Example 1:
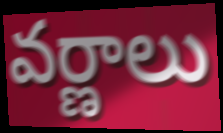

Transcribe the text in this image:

వర్ణాలు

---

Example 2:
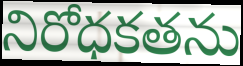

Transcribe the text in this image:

నిరోధకతను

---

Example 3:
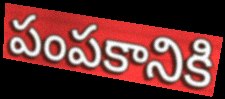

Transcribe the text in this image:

పంపకానికి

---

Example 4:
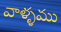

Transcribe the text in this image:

వాళ్ళము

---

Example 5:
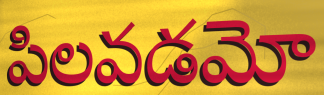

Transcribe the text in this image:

పిలవడమో